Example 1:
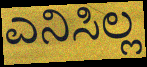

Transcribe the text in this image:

ಎನಿಸಿಲ್ಲ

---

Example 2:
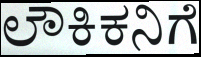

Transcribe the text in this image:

ಲೌಕಿಕನಿಗೆ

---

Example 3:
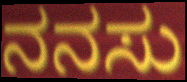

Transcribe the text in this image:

ನನಸು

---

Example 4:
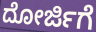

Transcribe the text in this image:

ದೋರ್ಜಿಗೆ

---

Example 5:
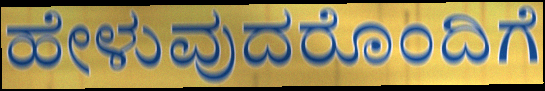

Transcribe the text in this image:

ಹೇಳುವುದರೊಂದಿಗೆ